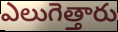
ఎలుగెత్తారు